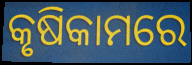
କୃଷିକାମରେ